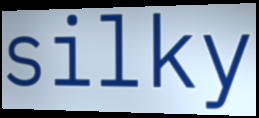
silky